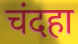
चंदहा